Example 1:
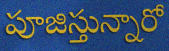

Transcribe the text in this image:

పూజిస్తున్నారో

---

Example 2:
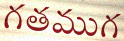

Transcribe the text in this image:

గతముగ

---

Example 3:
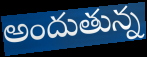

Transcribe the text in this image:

అందుతున్న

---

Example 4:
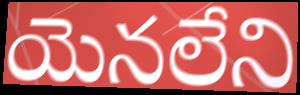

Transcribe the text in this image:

యెనలేని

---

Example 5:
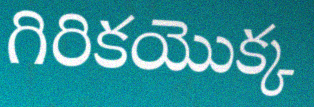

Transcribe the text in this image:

గిరికయొక్క